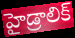
హైడ్రాలిక్